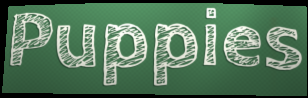
Puppies